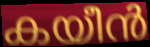
കയീൻ